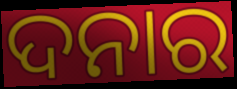
ଦନାର